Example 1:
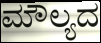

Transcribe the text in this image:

ಮೌಲ್ಯದ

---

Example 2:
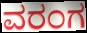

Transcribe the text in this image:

ವರಂಗ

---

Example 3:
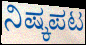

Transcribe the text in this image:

ನಿಷ್ಕಪಟ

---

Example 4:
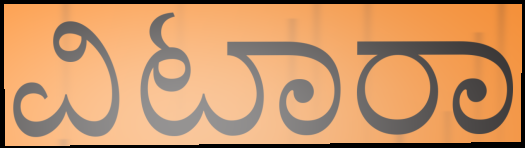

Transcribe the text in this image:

ವಿಟಾರಾ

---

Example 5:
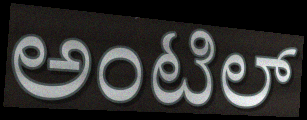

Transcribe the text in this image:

ಅಂಟಿಲ್